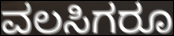
ವಲಸಿಗರೂ